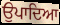
ਉਪਾਦਿਆ